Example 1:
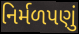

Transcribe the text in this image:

નિર્મળપણું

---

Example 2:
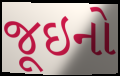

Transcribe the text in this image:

જૂઇનો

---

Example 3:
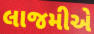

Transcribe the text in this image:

લાજમીએ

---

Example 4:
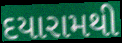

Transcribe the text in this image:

દયારામથી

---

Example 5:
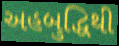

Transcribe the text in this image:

અહબુદ્ધિથી